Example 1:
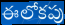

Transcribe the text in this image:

ఈలోకపు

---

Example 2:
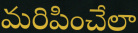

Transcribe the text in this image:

మరిపించేలా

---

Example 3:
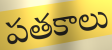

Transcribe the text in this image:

పతకాలు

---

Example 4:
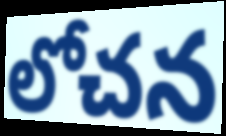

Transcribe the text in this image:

లోచన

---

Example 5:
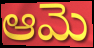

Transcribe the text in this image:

ఆమె